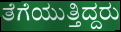
ತೆಗೆಯುತ್ತಿದ್ದರು